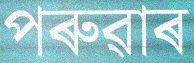
পৰুৱাৰ